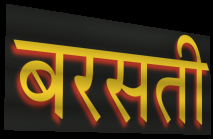
बरसती